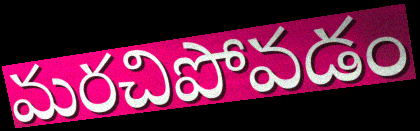
మరచిపోవడం